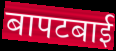
बापटबाई